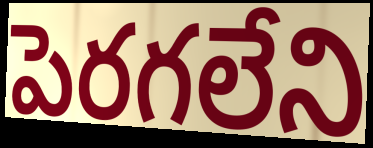
పెరగలేని